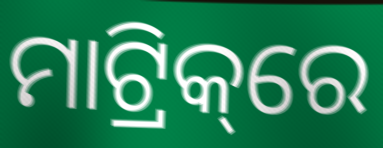
ମାଟ୍ରିକ୍‌ରେ